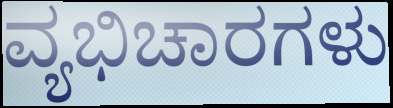
ವ್ಯಭಿಚಾರಗಳು